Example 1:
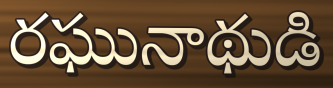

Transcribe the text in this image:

రఘునాథుడి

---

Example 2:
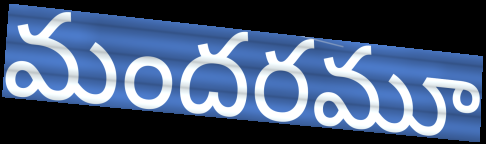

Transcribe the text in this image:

మందరమూ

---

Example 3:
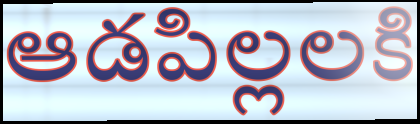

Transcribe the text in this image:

ఆడపిల్లలకి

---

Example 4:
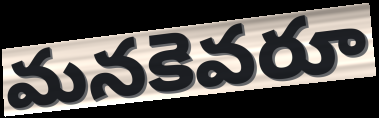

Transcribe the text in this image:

మనకెవరూ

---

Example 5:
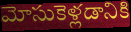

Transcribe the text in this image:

మోసుకెళ్లడానికి